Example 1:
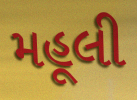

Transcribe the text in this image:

મહૂલી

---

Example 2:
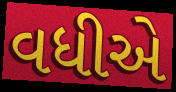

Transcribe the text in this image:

વધીએ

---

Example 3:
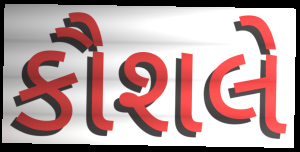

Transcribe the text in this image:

કૌશલે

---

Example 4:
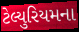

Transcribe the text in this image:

ટેલ્યુરિયમના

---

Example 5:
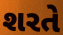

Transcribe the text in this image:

શરતે